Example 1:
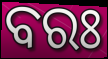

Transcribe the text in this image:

ବରଃ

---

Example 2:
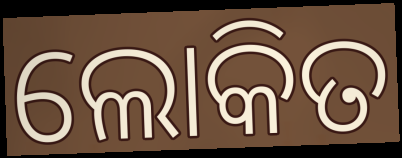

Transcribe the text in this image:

ଲୋକିତ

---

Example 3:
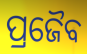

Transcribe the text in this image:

ପ୍ରଜୈବ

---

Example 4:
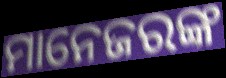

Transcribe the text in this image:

ମାନେଜରଙ୍କ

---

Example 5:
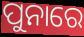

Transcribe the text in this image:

ପୁନାରେ